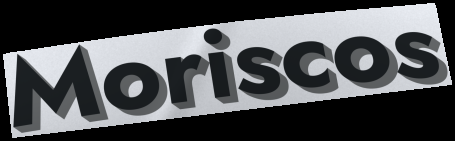
Moriscos